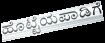
ಹೊಟ್ಟೆಯಪಾಡಿಗೆ